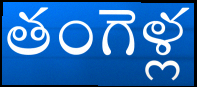
తంగెళ్ల